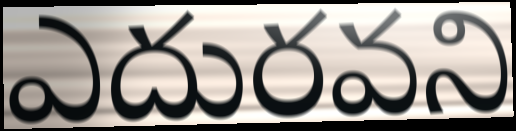
ఎదురవని